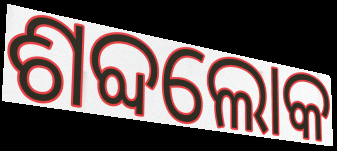
ଶବ୍ଦଲୋକ